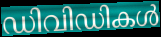
ഡിവിഡികൾ